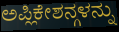
ಅಪ್ಲಿಕೇಶನ್ಗಳನ್ನು